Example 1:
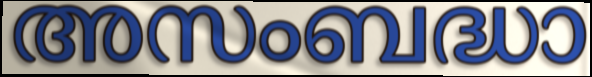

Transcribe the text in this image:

അസംബദ്ധാ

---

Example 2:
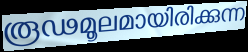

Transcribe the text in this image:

രൂഢമൂലമായിരിക്കുന്ന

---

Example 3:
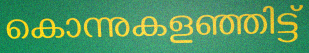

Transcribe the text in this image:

കൊന്നുകളഞ്ഞിട്ട്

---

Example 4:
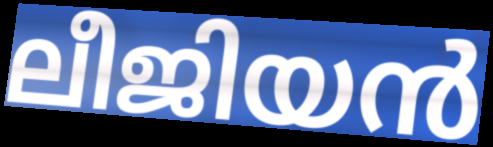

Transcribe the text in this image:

ലീജിയൻ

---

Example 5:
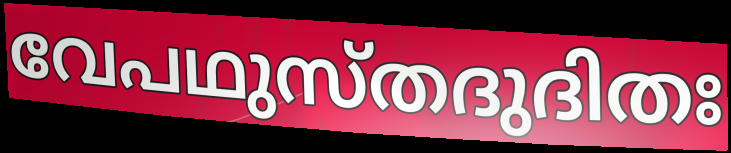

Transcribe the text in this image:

വേപഥുസ്തദുദിതഃ